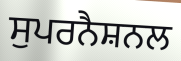
ਸੁਪਰਨੈਸ਼ਨਲ